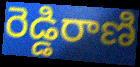
రెడ్డిరాణి